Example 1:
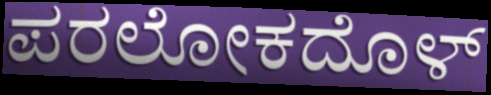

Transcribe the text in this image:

ಪರಲೋಕದೊಳ್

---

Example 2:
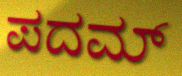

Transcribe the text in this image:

ಪದಮ್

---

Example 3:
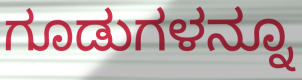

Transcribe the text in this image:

ಗೂಡುಗಳನ್ನೂ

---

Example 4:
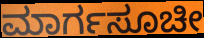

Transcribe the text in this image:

ಮಾರ್ಗಸೂಚೀ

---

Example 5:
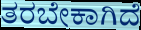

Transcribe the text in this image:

ತರಬೇಕಾಗಿದೆ